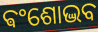
ଵଂଶୋଦ୍ଭବ